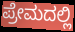
ಪ್ರೇಮದಲ್ಲಿ